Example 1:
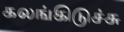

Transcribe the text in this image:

கலங்கிடுச்சு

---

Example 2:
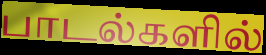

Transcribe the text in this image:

பாடல்களில்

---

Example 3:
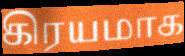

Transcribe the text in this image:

கிரயமாக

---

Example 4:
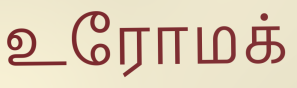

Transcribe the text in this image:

உரோமக்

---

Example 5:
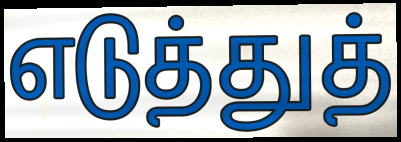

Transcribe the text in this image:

எடுத்துத்